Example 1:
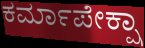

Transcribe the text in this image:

ಕರ್ಮಾಪೇಕ್ಷಾ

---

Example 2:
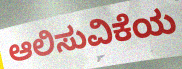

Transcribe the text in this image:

ಆಲಿಸುವಿಕೆಯ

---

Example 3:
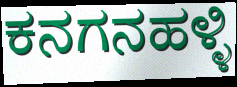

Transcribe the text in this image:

ಕನಗನಹಳ್ಳಿ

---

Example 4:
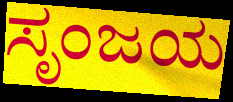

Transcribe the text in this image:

ಸೃಂಜಯ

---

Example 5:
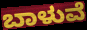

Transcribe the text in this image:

ಬಾಳುವೆ